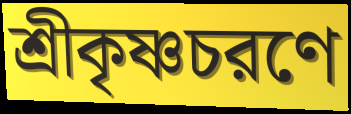
শ্রীকৃষ্ণচরণে